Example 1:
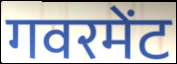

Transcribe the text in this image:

गवरमेंट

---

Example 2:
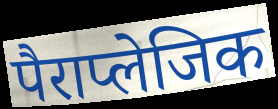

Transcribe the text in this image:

पैराप्लेजिक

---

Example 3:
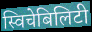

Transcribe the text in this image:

स्विचेबिलिटी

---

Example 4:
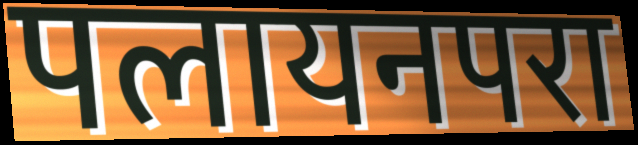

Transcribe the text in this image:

पलायनपरा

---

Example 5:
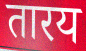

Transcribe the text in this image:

तारय